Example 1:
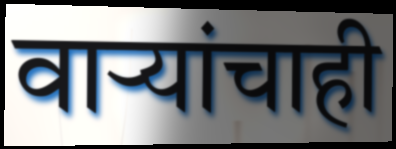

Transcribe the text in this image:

वाऱ्यांचाही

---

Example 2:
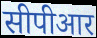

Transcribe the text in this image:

सीपीआर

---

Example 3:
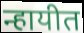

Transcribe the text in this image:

न्हायीत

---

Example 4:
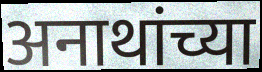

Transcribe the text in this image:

अनाथांच्या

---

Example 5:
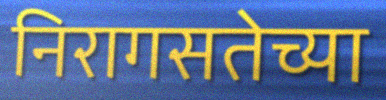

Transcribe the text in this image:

निरागसतेच्या